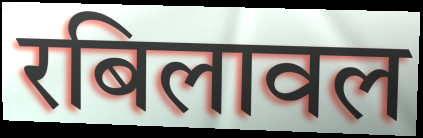
रबिलावल